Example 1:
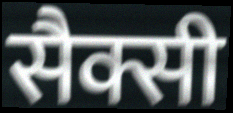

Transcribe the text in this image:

सैक्सी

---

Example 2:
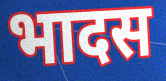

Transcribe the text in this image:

भादस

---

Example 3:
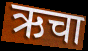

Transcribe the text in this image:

ऋचा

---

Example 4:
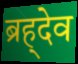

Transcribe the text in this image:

ब्रह्देव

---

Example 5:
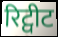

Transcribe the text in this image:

रिट्वीट